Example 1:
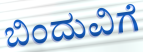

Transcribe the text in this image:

ಬಿಂದುವಿಗೆ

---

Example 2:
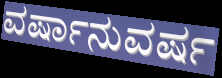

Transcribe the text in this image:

ವರ್ಷಾನುವರ್ಷ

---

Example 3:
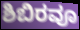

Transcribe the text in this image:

ಶಿಬಿರವೂ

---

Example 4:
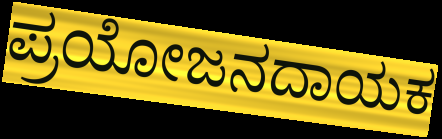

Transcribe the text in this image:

ಪ್ರಯೋಜನದಾಯಕ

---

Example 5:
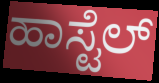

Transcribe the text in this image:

ಹಾಸ್ಟೆಲ್